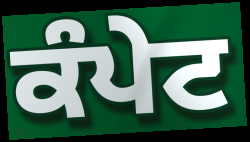
ਕੰਪੇਟ